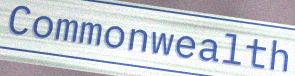
Commonwealth